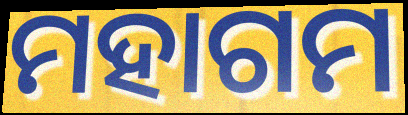
ମହାଗମ